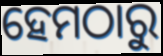
ହେମଠାରୁ